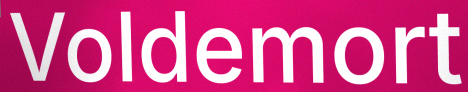
Voldemort